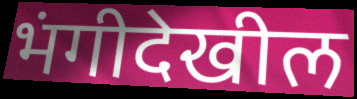
भंगीदेखील